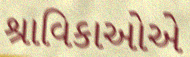
શ્રાવિકાઓએ